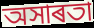
অসাৰতা